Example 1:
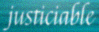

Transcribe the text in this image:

justiciable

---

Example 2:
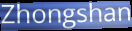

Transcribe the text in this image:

Zhongshan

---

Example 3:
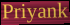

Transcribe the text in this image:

Priyank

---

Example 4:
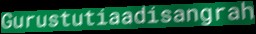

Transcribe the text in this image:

Gurustutiaadisangrah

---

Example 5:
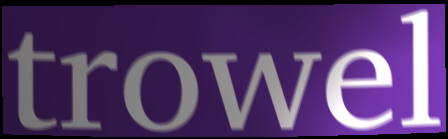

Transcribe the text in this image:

trowel